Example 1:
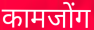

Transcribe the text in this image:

कामजोंग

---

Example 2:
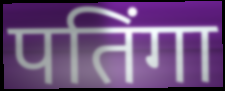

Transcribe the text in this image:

पतिंगा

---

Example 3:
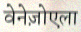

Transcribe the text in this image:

वेनेज़ोएला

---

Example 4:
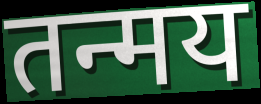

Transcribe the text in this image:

तन्मय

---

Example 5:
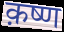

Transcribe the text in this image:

क़ष्ण